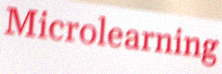
Microlearning